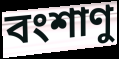
বংশাণু